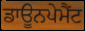
ਡਾਊਨਪੇਮੈਂਟ